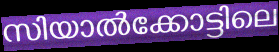
സിയാൽക്കോട്ടിലെ